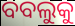
ବବଲୁକୁ